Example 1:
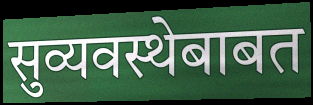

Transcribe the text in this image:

सुव्यवस्थेबाबत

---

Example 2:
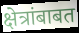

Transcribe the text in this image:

क्षेत्रांबाबत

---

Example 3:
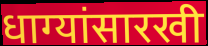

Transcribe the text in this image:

धाग्यांसारखी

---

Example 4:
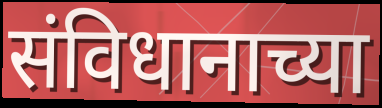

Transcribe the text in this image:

संविधानाच्या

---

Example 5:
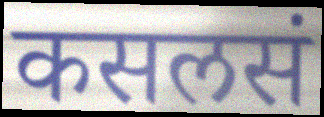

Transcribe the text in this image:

कसलसं